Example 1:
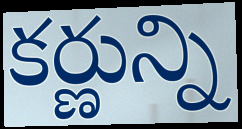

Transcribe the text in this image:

కర్ణున్ని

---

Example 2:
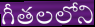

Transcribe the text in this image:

గీతలలోని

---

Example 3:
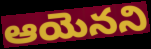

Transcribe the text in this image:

ఆయెనని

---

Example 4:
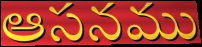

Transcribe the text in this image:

ఆసనము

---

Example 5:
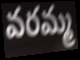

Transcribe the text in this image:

వరమ్మ